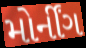
મોર્નીંગ